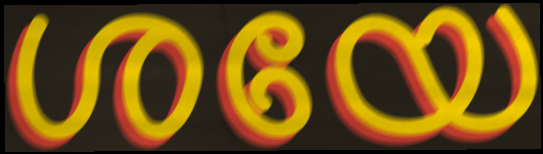
ശയേ